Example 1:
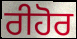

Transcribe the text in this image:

ਰੀਹੋਰ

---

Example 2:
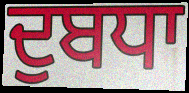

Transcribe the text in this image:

ਦੁਬਧਾ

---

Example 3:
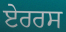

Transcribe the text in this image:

ਏਰਰਸ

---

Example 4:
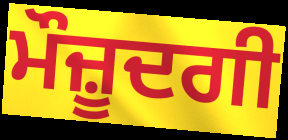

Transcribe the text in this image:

ਮੌਜ਼ੂਦਗੀ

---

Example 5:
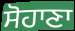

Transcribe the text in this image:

ਸੋਹਾਣਾ